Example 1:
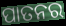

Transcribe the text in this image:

ପାତନର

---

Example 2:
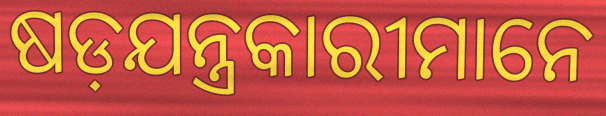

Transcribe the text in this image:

ଷଡ଼ଯନ୍ତ୍ରକାରୀମାନେ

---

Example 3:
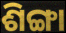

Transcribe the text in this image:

ଶିଙ୍ଗା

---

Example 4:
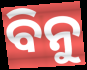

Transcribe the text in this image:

ବିନୁ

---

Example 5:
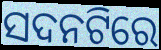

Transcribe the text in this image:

ସଦନଟିରେ